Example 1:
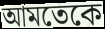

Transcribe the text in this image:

আমতেকে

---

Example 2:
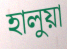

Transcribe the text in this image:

হালুয়া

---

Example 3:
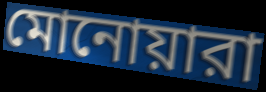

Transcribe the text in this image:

মোনোয়ারা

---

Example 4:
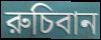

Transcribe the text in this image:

রুচিবান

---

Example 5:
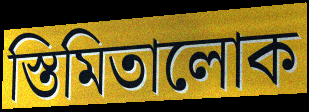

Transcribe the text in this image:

স্তিমিতালোক